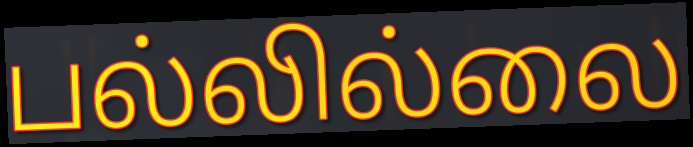
பல்லில்லை